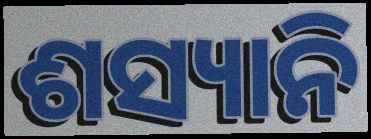
ଶସ୍ୟାନି